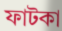
ফাটকা